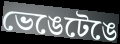
ভেঙেটেঙে